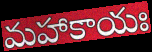
మహాకాయః